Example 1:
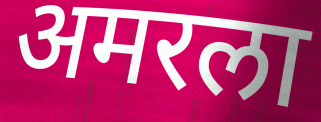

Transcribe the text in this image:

अमरला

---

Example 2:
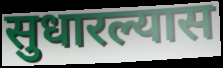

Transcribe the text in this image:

सुधारल्यास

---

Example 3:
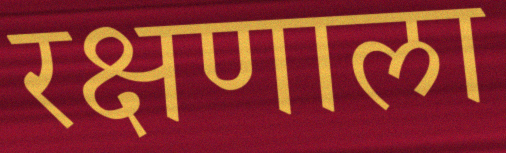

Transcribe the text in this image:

रक्षणाला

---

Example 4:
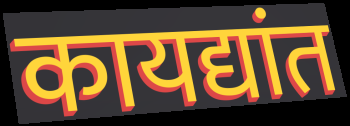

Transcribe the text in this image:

कायद्यांत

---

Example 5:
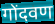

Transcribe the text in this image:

गोंदवण